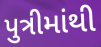
પુત્રીમાંથી